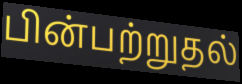
பின்பற்றுதல்